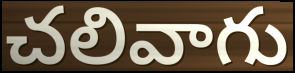
చలివాగు